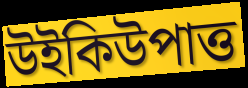
উইকিউপাত্ত